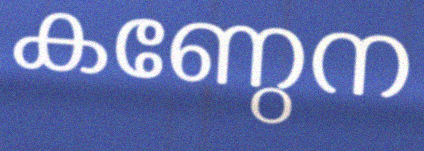
കണ്ഠേന